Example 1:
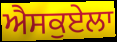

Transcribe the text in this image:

ਐਸਕੁਏਲਾ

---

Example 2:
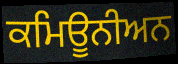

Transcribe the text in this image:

ਕਮਿਊਨੀਅਨ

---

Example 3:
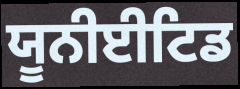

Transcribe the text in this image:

ਯੂਨੀਈਟਿਡ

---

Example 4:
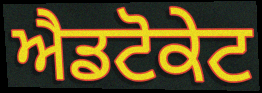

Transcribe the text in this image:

ਐਡਟੋਕੇਟ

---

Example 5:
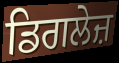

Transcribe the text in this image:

ਡਿਗਲੇਜ਼